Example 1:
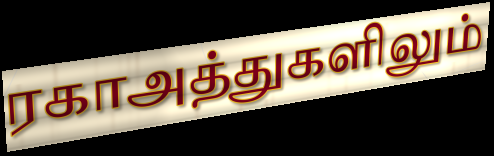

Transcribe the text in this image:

ரகாஅத்துகளிலும்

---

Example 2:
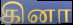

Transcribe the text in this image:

கினா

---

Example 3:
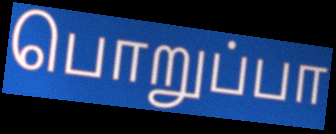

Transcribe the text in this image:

பொறுப்பா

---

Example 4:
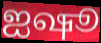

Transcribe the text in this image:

ஐஷூ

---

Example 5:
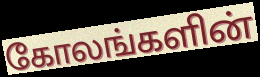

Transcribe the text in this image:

கோலங்களின்